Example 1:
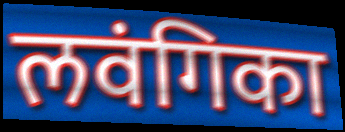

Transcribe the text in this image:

लवंगिका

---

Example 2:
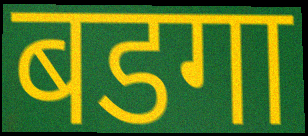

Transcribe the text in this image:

बडगा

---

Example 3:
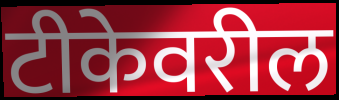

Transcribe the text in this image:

टीकेवरील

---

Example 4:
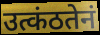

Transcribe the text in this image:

उत्कंठतेनं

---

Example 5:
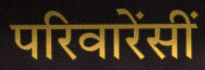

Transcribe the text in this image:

परिवारेंसीं